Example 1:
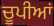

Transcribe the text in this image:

ਚੂਪੀਆਂ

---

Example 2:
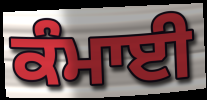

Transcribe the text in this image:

ਕੰਮਾਈ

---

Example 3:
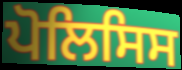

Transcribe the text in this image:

ਪੋਲਿਸਿਸ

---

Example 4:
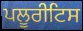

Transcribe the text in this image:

ਪਲੂਰੀਟਿਸ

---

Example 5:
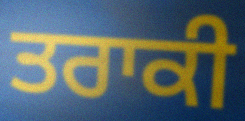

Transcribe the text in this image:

ਤਰਾਕੀ